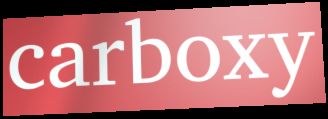
carboxy